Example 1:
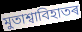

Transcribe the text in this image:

মুতাশ্বাবিহাতৰ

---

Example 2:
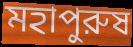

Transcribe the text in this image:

মহাপুৰুষ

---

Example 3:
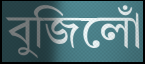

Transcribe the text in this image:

বুজিলোঁ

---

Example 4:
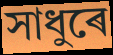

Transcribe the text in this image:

সাধুৰে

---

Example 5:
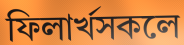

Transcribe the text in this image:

ফিলাৰ্খসকলে